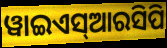
ୱାଇଏସ୍ଆରସିପି